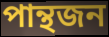
পান্থজন